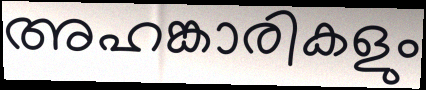
അഹങ്കാരികളും